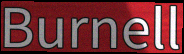
Burnell